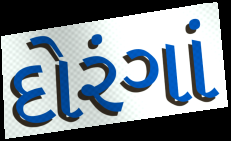
દોરંગાં